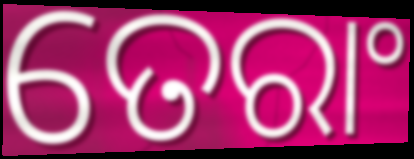
ତେରାଂ